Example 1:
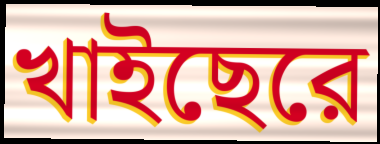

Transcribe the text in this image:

খাইছেরে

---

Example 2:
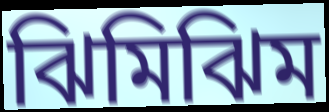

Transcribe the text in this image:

ঝিমিঝিম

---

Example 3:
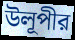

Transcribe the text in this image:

উলূপীর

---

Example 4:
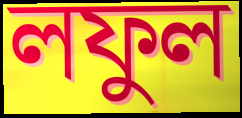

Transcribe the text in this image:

লফুল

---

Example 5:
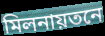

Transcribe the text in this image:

মিলনায়তনে